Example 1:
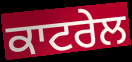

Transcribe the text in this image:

ਕਾਟਰੇਲ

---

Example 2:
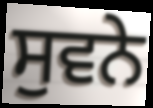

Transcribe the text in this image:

ਸੁਵਨੇ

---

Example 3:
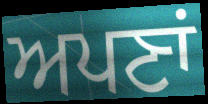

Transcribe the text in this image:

ਅਪਣਾਂ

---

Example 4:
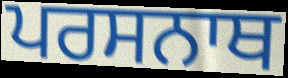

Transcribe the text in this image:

ਪਰਸਨਾਥ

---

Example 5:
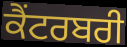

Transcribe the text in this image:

ਕੈਂਟਰਬਰੀ